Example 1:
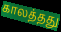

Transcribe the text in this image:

காலத்தது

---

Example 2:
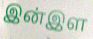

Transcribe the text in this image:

இன்இள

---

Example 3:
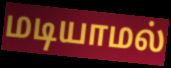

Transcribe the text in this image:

மடியாமல்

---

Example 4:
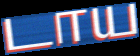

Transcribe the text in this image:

டாய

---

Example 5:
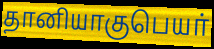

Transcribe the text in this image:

தானியாகுபெயர்